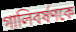
গালিবর্ষণকে